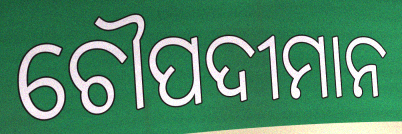
ଚୌପଦୀମାନ